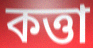
কত্তা